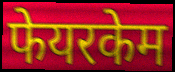
फेयरकेम